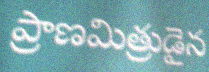
ప్రాణమిత్రుడైన